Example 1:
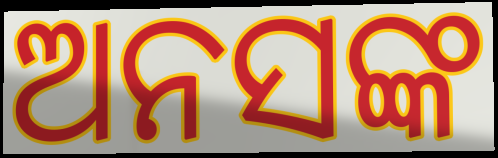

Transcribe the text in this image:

ଅନସଙ୍କ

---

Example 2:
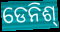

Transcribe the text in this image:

ଡେନିଶ୍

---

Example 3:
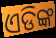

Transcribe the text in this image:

ଏଡିଙ୍କ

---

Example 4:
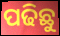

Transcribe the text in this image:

ପଢିଛୁ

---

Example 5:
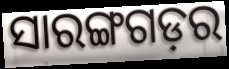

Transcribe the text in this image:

ସାରଙ୍ଗଗଡ଼ର